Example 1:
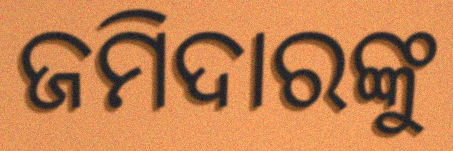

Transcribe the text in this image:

ଜମିଦାରଙ୍କୁ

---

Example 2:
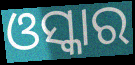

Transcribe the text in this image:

ଓସ୍କାର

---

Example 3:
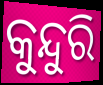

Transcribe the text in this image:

କୁନ୍ଦୁରି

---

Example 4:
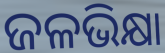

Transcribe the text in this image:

ଜଳଭିକ୍ଷା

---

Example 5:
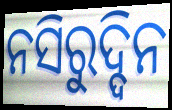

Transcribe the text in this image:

ନସିରୁଦ୍ଦିନ